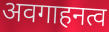
अवगाहनत्व